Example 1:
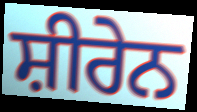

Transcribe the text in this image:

ਸ਼ੀਰੇਨ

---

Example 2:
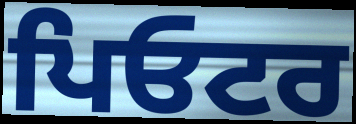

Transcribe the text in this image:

ਪਿਓਟਰ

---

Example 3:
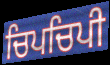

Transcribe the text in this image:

ਚਿਪਚਿਪੀ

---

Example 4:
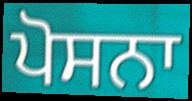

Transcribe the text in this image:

ਪੋਸਨਾ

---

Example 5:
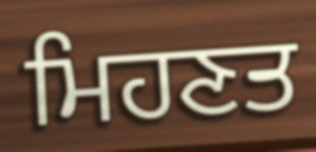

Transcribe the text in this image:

ਮਿਹਣਤ